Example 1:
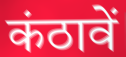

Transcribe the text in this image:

कंठावें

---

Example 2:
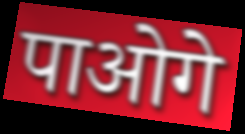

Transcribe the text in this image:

पाओगे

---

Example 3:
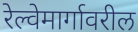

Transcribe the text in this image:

रेल्वेमार्गावरील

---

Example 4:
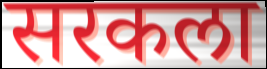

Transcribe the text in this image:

सरकला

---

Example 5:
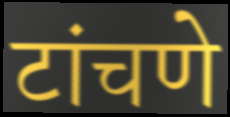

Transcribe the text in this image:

टांचणे